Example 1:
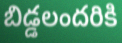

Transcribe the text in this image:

బిడ్డలందరికి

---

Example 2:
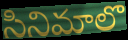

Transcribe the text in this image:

సినిమాలొ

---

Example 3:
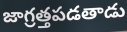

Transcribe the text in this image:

జాగ్రత్తపడతాడు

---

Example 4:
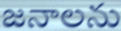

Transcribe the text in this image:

జనాలను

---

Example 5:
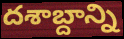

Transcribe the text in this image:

దశాబ్దాన్ని